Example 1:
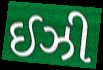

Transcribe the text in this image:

ઈઝી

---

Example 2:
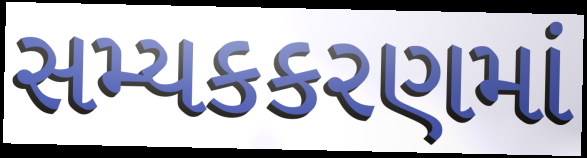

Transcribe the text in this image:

સમ્યકકરણમાં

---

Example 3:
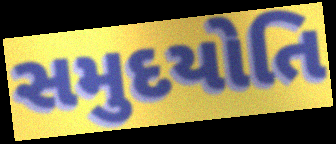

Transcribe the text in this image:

સમુદયોતિ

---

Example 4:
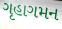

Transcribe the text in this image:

ગૃહાગમન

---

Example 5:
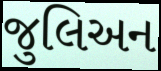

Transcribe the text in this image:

જુલિઅન